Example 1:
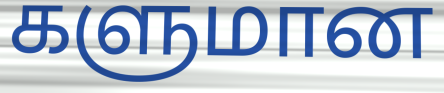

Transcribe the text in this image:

களுமான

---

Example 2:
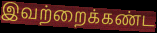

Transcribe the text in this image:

இவற்றைக்கண்ட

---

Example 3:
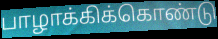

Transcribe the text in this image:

பாழாக்கிக்கொண்டு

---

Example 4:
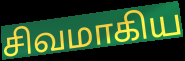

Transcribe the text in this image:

சிவமாகிய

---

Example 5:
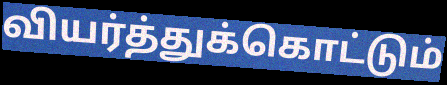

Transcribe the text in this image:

வியர்த்துக்கொட்டும்